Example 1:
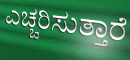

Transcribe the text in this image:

ಎಚ್ಚರಿಸುತ್ತಾರೆ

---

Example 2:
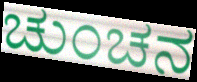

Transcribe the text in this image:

ಚುಂಚನ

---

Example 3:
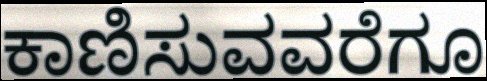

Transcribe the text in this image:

ಕಾಣಿಸುವವರೆಗೂ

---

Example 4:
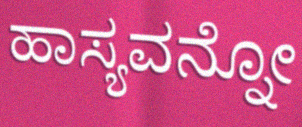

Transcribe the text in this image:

ಹಾಸ್ಯವನ್ನೋ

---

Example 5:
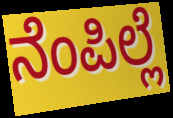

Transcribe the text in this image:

ನೆಂಪಿಲ್ಲೆ